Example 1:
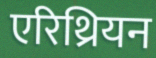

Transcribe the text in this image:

एरिथ्रियन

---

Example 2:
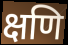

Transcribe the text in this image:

क्षणि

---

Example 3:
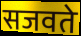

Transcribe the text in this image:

सजवते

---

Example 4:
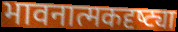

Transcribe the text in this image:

भावनात्मकदृष्ट्या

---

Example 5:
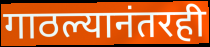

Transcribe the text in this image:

गाठल्यानंतरही